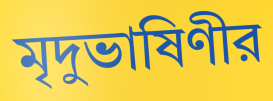
মৃদুভাষিণীর